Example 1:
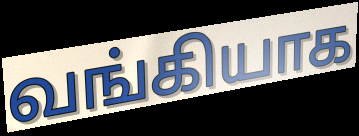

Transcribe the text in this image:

வங்கியாக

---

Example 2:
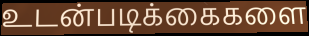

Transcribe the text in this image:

உடன்படிக்கைகளை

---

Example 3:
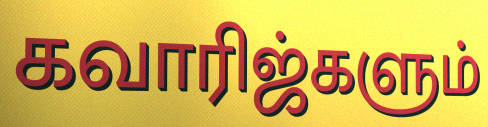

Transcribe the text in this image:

கவாரிஜ்களும்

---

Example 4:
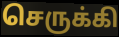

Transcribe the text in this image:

செருக்கி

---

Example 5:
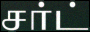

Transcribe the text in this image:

சர்ட்